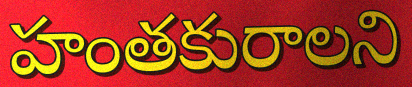
హంతకురాలని